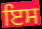
ਇਸ